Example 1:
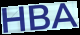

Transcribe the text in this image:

HBA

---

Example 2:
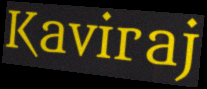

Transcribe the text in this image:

Kaviraj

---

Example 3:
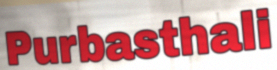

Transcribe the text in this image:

Purbasthali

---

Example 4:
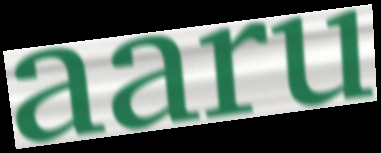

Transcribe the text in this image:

aaru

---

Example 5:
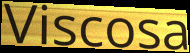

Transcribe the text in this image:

Viscosa